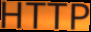
HTTP